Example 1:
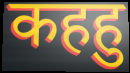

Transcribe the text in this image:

कहहु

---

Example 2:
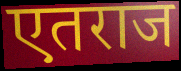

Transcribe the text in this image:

एतराज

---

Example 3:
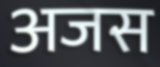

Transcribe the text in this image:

अजस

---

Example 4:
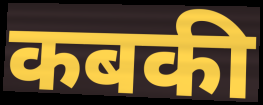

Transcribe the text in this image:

कबकी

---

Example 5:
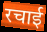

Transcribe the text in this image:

रचाई